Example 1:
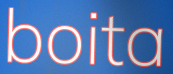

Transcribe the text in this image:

boita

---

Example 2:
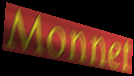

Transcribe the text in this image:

Monnet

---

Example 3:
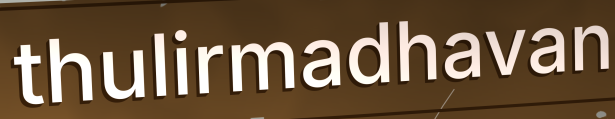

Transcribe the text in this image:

thulirmadhavan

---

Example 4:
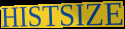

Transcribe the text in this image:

HISTSIZE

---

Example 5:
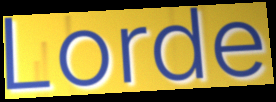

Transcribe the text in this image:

Lorde